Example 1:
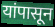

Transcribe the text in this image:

यांपासून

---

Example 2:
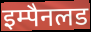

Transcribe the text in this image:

इम्पैनलड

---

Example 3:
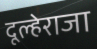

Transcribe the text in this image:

दूल्हेराजा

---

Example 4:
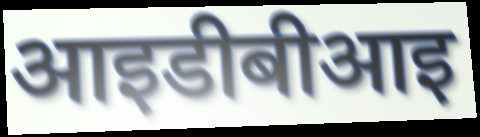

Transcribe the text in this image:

आइडीबीआइ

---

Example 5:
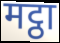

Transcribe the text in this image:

मट्ठा